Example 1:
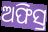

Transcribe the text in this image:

ଅଫିସ୍ର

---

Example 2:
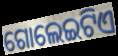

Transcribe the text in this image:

ଗୋଲେଇଟିଏ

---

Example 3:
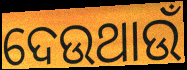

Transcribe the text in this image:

ଦେଉଥାଉଁ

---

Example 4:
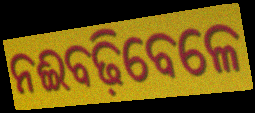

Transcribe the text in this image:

ନଈବଢ଼ିବେଳେ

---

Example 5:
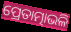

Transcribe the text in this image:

ପ୍ରେତାତ୍ମାଭଳି